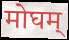
मोघम्